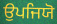
ਉਪਜਿਯੋ